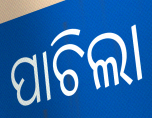
ପାଚିଲା